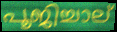
പൂജിച്ചാല്